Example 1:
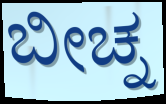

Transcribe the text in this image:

ಬೀಚ್ನ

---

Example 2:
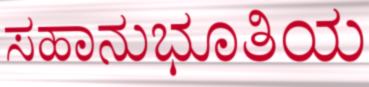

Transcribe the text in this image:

ಸಹಾನುಭೂತಿಯ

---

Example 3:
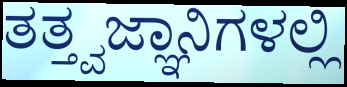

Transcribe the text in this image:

ತತ್ತ್ವಜ್ಞಾನಿಗಳಲ್ಲಿ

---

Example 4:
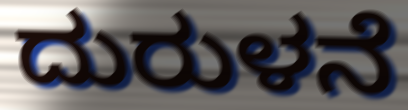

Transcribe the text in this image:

ದುರುಳನೆ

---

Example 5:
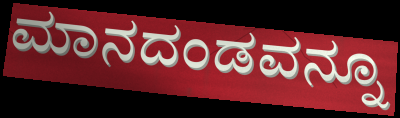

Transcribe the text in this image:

ಮಾನದಂಡವನ್ನೂ